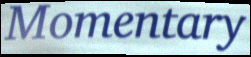
Momentary